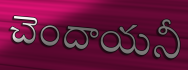
చెందాయనీ